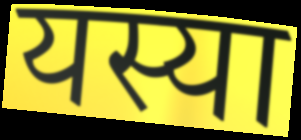
यस्या